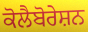
ਕੋਲੈਬੋਰੇਸ਼ਨ